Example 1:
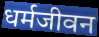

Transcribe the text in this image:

धर्मजीवन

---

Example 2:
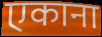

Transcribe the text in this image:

एकाना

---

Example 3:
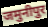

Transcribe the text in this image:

जमुनीपुर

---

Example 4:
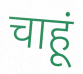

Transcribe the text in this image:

चाहूं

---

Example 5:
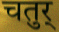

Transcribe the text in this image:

चतुर्